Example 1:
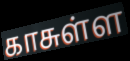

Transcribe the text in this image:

காசுள்ள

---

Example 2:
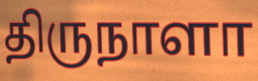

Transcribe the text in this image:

திருநாளா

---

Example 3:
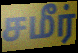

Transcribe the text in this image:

சமீர்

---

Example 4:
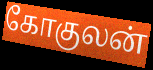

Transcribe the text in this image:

கோகுலன்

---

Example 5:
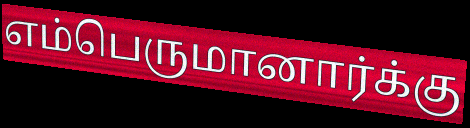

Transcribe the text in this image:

எம்பெருமானார்க்கு